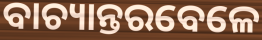
ବାଚ୍ୟାନ୍ତରବେଳେ